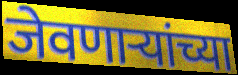
जेवणाऱ्यांच्या